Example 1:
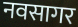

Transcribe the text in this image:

नवसागर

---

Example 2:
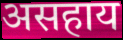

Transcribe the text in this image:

असहाय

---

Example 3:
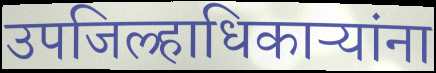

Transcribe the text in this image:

उपजिल्हाधिकाऱ्यांना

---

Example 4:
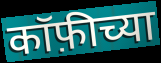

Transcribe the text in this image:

कॉफ़ीच्या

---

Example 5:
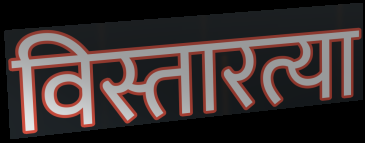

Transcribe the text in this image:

विस्तारत्या